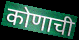
कोणाची